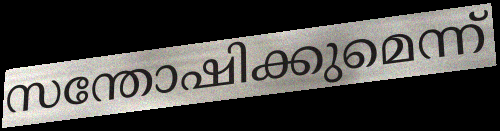
സന്തോഷിക്കുമെന്ന്